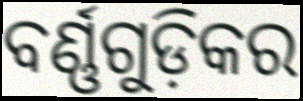
ବର୍ଣ୍ଣଗୁଡ଼ିକର